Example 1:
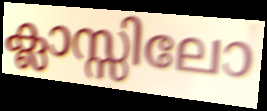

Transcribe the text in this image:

ക്ലാസ്സിലോ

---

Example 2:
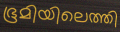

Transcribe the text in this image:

ഭൂമിയിലെത്തി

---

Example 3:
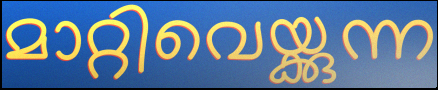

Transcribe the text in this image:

മാറ്റിവെയ്ക്കുന്ന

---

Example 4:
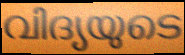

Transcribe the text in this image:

വിദ്യയുടെ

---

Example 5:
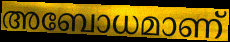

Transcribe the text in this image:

അബോധമാണ്